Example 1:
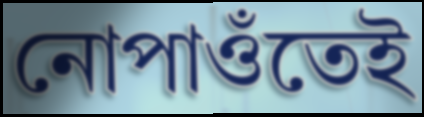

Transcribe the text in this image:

নোপাওঁতেই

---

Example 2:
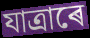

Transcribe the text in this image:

যাত্ৰাৰে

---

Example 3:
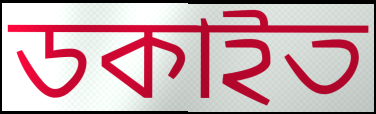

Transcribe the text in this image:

ডকাইত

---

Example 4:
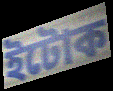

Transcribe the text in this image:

ইটোক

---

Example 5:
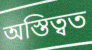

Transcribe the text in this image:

অস্তিত্বত